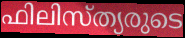
ഫിലിസ്ത്യരുടെ